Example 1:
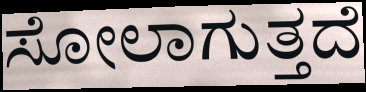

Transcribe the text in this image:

ಸೋಲಾಗುತ್ತದೆ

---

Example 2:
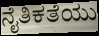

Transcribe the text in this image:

ನೈತಿಕತೆಯು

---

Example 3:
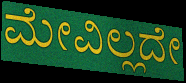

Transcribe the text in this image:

ಮೇವಿಲ್ಲದೇ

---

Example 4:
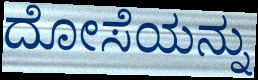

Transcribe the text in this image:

ದೋಸೆಯನ್ನು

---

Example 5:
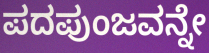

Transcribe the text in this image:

ಪದಪುಂಜವನ್ನೇ